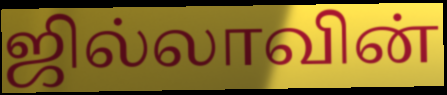
ஜில்லாவின்